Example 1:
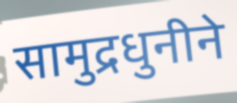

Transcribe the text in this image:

सामुद्रधुनीने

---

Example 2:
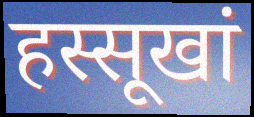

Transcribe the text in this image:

हस्सूखां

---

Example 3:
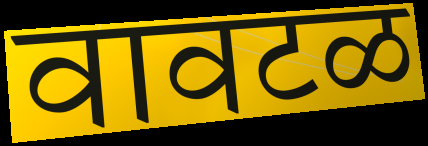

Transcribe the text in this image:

वावटळ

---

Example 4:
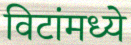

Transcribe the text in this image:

विटांमध्ये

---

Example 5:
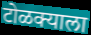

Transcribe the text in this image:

टोळक्याला